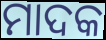
ମାଦକ